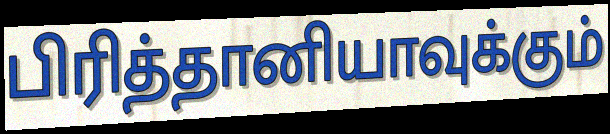
பிரித்தானியாவுக்கும்